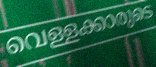
വെള്ളക്കാരുടെ